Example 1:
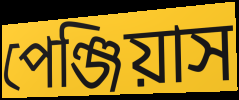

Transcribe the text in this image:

পেঞ্জিয়াস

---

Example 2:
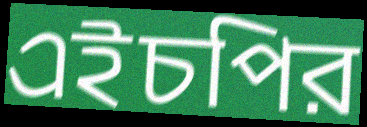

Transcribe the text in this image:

এইচপির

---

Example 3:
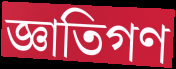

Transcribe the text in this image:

জ্ঞাতিগণ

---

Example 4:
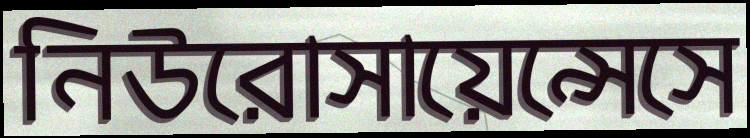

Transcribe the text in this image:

নিউরোসায়েন্সেসে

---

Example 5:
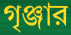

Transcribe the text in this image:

গৃঞ্জার